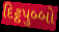
દિટ્ઠપુબ્બો